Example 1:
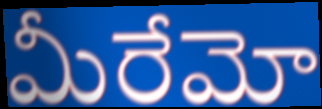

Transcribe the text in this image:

మీరేమో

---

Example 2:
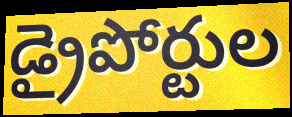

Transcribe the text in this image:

డ్రైపోర్టుల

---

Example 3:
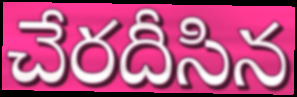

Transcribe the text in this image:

చేరదీసిన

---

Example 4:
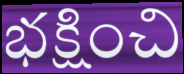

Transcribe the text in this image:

భక్షించి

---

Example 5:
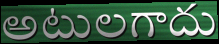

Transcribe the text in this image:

అటులగాదు